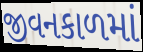
જીવનકાળમાં